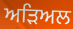
ਅੜਿਅਲ